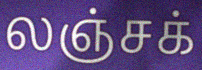
லஞ்சக்